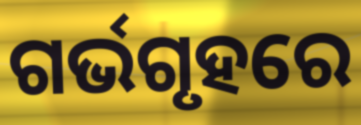
ଗର୍ଭଗୃହରେ